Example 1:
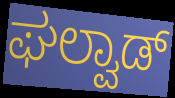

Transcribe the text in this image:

ಘಲ್ವಾಡ್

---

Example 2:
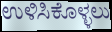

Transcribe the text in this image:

ಉಳಿಸಿಕೊಳ್ಳಲು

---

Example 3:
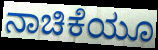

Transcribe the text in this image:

ನಾಚಿಕೆಯೂ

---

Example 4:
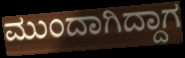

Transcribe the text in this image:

ಮುಂದಾಗಿದ್ದಾಗ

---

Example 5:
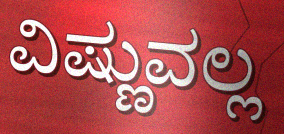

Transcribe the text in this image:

ವಿಷ್ಣುವಲ್ಲ